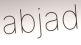
abjad